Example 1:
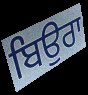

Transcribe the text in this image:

ਬਿਉਰਾ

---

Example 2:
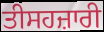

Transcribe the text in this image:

ਤੀਸਹਜ਼ਾਰੀ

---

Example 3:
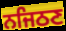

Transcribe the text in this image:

ਨਜਿਠਣ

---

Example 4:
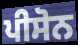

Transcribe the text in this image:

ਪੀਸੋਨ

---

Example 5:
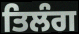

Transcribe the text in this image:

ਤਿਲੰਗ